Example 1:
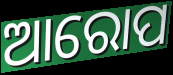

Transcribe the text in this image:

ଆରୋପ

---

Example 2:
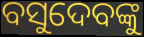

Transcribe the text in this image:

ବସୁଦେବଙ୍କୁ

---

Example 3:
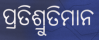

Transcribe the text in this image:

ପ୍ରତିଶ୍ରୁତିମାନ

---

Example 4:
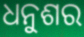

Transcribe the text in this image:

ଧନୁଶର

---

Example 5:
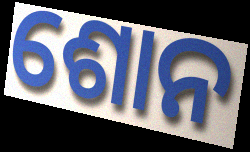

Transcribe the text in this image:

ଶୋନ